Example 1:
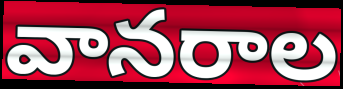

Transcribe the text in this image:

వానరాల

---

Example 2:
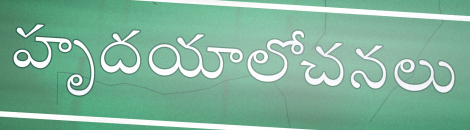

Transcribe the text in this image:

హృదయాలోచనలు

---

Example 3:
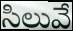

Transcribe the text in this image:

సిలువే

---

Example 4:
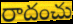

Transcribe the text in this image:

రాదంచు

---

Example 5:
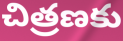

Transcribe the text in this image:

చిత్రణకు